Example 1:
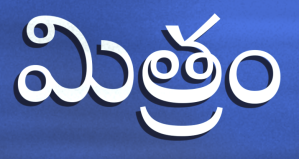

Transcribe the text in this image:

మిత్రం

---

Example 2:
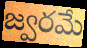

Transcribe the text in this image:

జ్వరమే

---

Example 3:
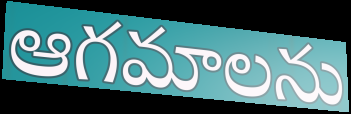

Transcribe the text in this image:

ఆగమాలను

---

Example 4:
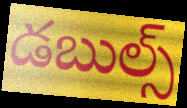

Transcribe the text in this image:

డబుల్స్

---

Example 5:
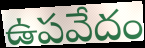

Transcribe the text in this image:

ఉపవేదం